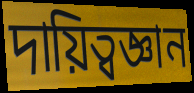
দায়িত্বজ্ঞান